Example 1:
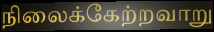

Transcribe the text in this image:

நிலைக்கேற்றவாறு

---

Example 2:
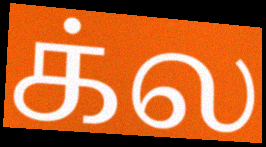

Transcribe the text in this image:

க்ல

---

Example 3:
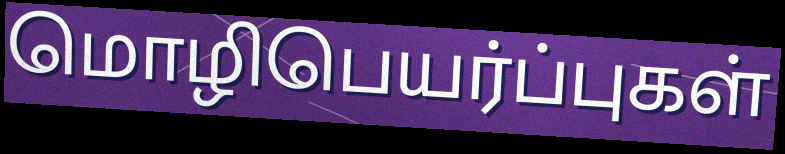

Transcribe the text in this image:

மொழிபெயர்ப்புகள்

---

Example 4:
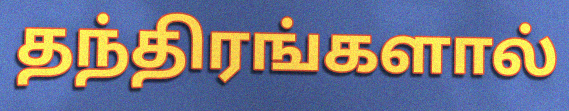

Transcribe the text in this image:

தந்திரங்களால்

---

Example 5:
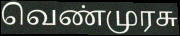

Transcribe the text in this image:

வெண்முரசு